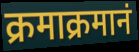
क्रमाक्रमानं